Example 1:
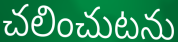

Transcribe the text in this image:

చలించుటను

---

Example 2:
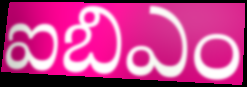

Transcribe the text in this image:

ఐబిఎం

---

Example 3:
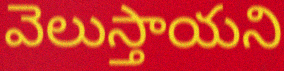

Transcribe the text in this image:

వెలుస్తాయని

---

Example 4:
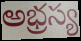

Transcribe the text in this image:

అభ్రస్య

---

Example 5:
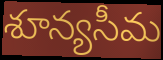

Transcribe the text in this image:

శూన్యసీమ